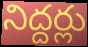
నిద్దర్లు